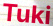
Tuki